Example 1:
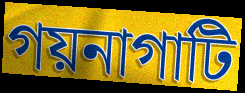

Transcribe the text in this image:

গয়নাগাটি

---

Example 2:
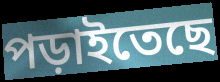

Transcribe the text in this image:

পড়াইতেছে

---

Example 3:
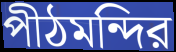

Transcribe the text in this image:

পীঠমন্দির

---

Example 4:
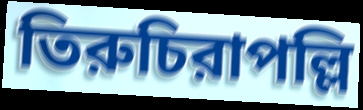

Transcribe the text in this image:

তিরুচিরাপল্লি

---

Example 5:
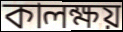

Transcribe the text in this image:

কালক্ষয়